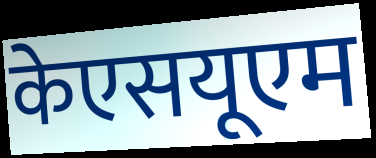
केएसयूएम